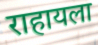
राहायला